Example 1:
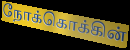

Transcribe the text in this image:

நோக்கொக்கின்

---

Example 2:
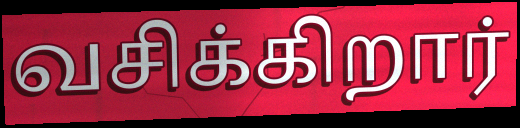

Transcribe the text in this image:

வசிக்கிறார்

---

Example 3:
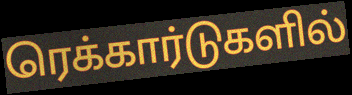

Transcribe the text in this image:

ரெக்கார்டுகளில்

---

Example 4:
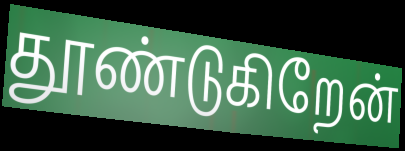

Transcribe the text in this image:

தூண்டுகிறேன்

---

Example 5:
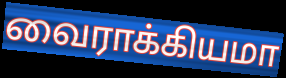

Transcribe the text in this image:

வைராக்கியமா